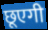
छूएगी